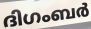
ദിഗംബർ